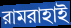
রামরাহাই